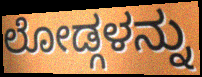
ಲೋಡ್ಗಳನ್ನು